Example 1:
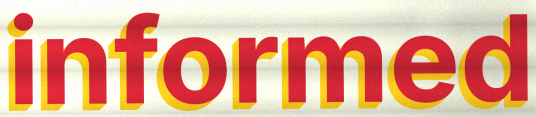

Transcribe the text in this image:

informed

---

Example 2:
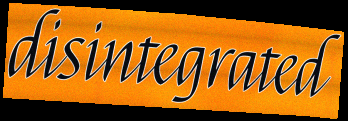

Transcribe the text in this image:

disintegrated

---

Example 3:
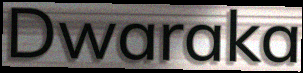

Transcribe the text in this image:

Dwaraka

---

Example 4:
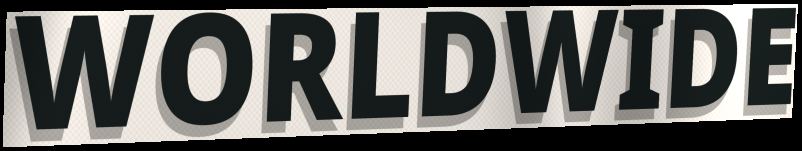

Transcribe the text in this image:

WORLDWIDE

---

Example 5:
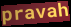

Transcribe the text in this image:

pravah